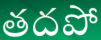
తదపో